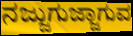
ನಜ್ಜುಗುಜ್ಜಾಗುವ